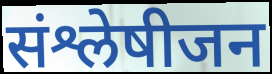
संश्लेषीजन